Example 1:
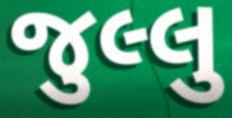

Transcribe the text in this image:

જુલ્લુ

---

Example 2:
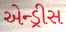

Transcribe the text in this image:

એન્ડ્રીસ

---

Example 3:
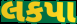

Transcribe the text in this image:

લકપા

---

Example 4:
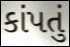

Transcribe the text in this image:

કાંપતું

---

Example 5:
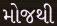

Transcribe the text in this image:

મોજથી